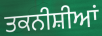
ਤਕਨੀਸ਼ੀਆਂ